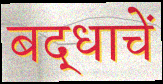
बद्धाचें